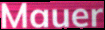
Mauer